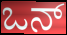
ಒನ್